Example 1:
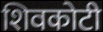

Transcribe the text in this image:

शिवकोटी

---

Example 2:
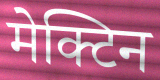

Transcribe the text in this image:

मेक्टिन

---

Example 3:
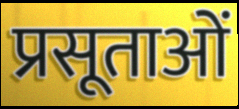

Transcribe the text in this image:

प्रसूताओं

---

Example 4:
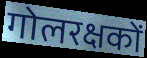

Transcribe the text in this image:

गोलरक्षकों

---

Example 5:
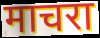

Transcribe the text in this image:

माचरा